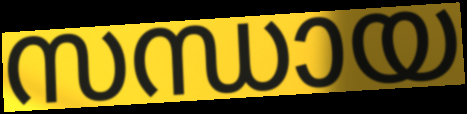
സന്ധായ